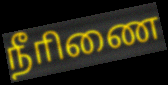
நீரிணை